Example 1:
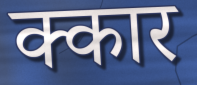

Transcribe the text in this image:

क्कार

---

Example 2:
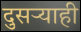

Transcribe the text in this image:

दुसर्‍याही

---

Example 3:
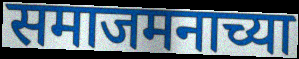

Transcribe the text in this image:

समाजमनाच्या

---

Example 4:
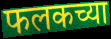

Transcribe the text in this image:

फलकच्या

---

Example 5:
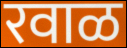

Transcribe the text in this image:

रवाळ